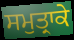
ਸਮੁਤ੍ਰਾਕੇ